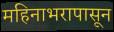
महिनाभरापासून